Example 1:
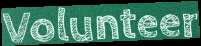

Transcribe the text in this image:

Volunteer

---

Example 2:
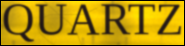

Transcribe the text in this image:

QUARTZ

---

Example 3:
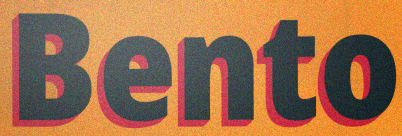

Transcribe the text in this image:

Bento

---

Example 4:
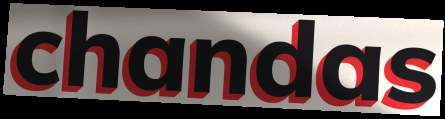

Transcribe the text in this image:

chandas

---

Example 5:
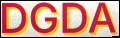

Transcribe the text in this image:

DGDA